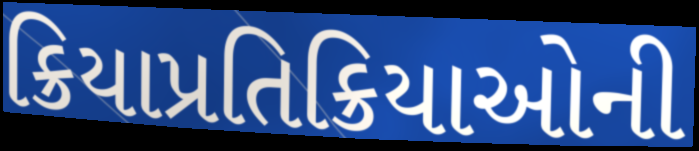
ક્રિયાપ્રતિક્રિયાઓની